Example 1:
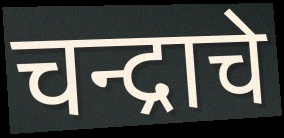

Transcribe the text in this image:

चन्द्राचे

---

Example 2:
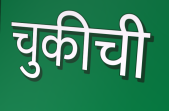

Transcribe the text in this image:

चुकीची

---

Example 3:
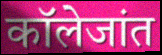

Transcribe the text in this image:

कॉलेजांत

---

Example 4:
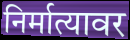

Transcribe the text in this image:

निर्मात्यावर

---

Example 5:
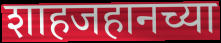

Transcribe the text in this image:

शाहजहानच्या